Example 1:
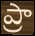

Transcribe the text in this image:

ప్రా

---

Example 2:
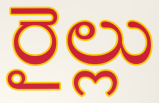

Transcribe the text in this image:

రైల్లు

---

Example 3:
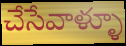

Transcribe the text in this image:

చేసేవాళ్ళూ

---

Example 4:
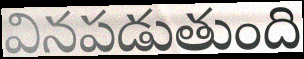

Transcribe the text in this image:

వినపడుతుంది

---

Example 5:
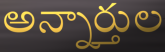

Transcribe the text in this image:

అన్నార్తుల